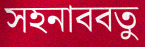
সহনাববতু